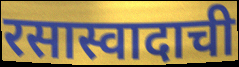
रसास्वादाची